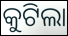
କୁଟିଲା